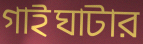
গাইঘাটার